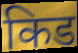
किड